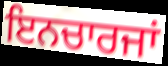
ਇਨਚਾਰਜਾਂ